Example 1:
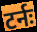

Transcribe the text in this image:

टर्नः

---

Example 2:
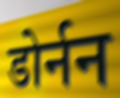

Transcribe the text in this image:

डोर्नन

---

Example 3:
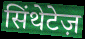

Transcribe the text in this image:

सिंथेटेज़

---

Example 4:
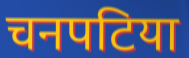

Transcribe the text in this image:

चनपटिया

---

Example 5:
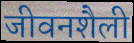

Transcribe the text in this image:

जीवनशैली